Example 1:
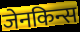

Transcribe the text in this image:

जेनकिन्स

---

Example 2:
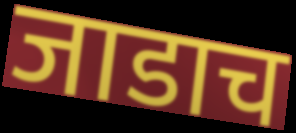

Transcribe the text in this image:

जाडाच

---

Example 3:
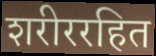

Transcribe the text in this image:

शरीररहित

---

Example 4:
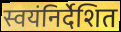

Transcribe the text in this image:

स्वयंनिर्देशित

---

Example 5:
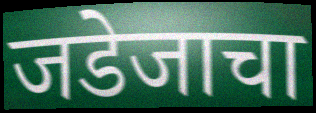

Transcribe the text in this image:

जडेजाचा